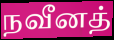
நவீனத்